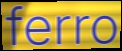
ferro